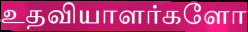
உதவியாளர்களோ